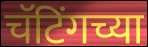
चॅटिंगच्या